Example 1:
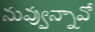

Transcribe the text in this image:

నువ్వున్నావో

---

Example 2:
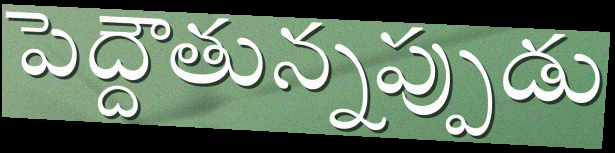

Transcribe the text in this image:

పెద్దౌతున్నప్పుడు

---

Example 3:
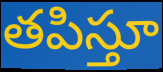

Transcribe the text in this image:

తపిస్తూ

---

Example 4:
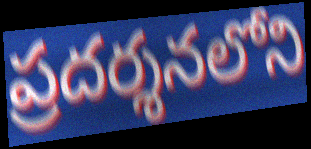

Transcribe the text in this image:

ప్రదర్శనలోని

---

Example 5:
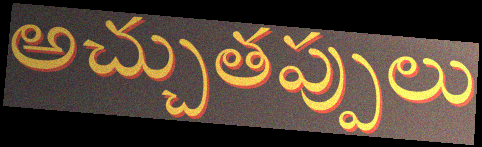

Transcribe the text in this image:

అచ్చుతప్పులు